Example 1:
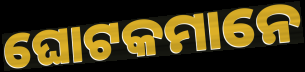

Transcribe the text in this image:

ଘୋଟକମାନେ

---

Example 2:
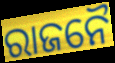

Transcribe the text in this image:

ରାଜନୈ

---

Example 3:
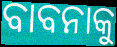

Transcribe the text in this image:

ବାବନାକୁ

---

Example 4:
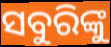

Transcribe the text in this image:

ସବୁରିଙ୍କୁ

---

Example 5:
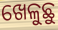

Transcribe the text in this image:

ଖେଳୁଛୁ